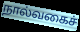
நால்வகைச்